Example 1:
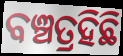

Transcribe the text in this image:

ବଞ୍ଚତ୍ରହିଛି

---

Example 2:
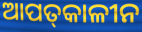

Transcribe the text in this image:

ଆପତ୍‌କାଳୀନ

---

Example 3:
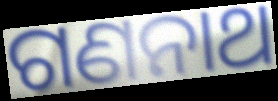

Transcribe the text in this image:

ଗଣନାଥ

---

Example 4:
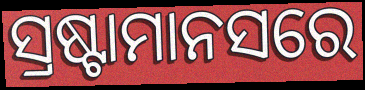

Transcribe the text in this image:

ସ୍ରଷ୍ଟାମାନସରେ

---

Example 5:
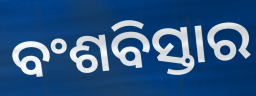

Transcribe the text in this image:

ବଂଶବିସ୍ତାର